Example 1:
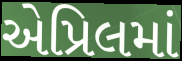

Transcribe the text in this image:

એપ્રિલમાં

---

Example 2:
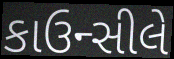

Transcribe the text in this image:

કાઉન્સીલે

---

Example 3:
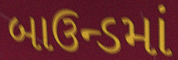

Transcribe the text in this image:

બાઉન્ડમાં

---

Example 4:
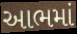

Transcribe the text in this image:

આભમાં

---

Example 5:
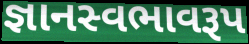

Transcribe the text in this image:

જ્ઞાનસ્વભાવરૂપ